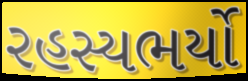
રહસ્યભર્યો